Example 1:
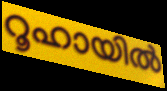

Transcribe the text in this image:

റൂഹായിൽ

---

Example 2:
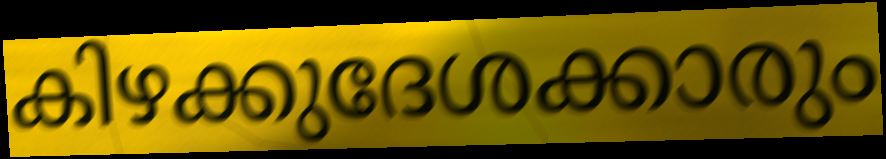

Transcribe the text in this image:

കിഴക്കുദേശക്കാരും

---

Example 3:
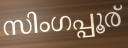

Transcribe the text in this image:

സിംഗപ്പൂര്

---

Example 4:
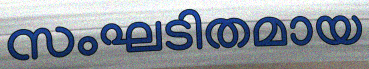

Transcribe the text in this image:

സംഘടിതമായ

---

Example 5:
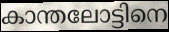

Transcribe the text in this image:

കാന്തലോട്ടിനെ